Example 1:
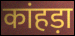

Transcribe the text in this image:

कांहड़ा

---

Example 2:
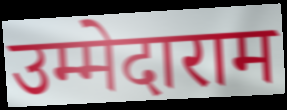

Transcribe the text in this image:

उम्मेदाराम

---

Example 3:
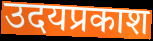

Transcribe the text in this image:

उदयप्रकाश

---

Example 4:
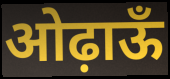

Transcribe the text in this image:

ओढ़ाऊँ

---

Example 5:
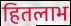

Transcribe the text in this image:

हितलाभ